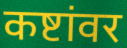
कष्टांवर